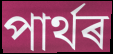
পাৰ্থৰ